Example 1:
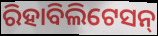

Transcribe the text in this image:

ରିହାବିଲିଟେସନ୍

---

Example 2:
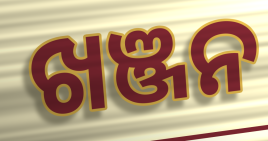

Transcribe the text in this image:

ଖଞ୍ଜନ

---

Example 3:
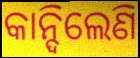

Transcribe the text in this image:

କାନ୍ଦିଲେଣି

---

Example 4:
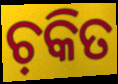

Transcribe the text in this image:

ଚ଼କିତ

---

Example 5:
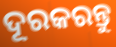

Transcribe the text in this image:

ଦୂରକରନ୍ତୁ